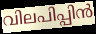
വിലപിപ്പിൻ